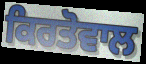
ਕਿਰਤੋਵਾਲ